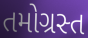
તમોગ્રસ્ત